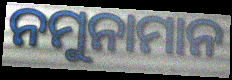
ନମୁନାମାନ